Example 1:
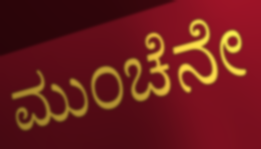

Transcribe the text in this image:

ಮುಂಚೆನೇ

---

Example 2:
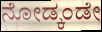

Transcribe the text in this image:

ನೋಡ್ಕಂಡೇ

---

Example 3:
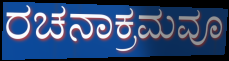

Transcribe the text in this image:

ರಚನಾಕ್ರಮವೂ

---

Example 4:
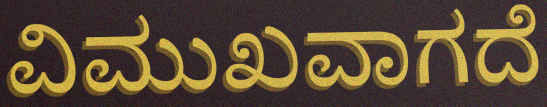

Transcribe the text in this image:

ವಿಮುಖವಾಗದೆ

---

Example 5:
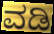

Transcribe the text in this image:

ವಡಿ